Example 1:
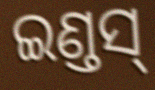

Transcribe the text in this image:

ଇଣ୍ଡସ୍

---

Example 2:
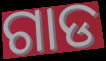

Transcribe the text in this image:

ଗାଡ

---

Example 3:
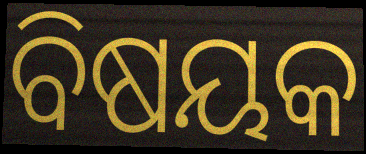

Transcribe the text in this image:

ବିଷୟକ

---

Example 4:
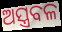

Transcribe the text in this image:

ଅସ୍ତ୍ରବଳ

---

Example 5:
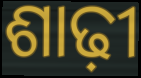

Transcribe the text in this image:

ଶାଢ଼ୀ